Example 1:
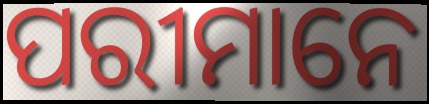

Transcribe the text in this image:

ପରୀମାନେ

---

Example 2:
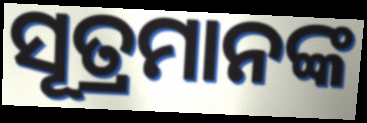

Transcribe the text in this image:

ସୂତ୍ରମାନଙ୍କ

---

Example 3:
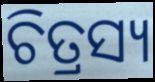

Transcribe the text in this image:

ଚିତ୍ରସ୍ୟ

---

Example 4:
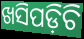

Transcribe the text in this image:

ଖସିପଡ଼ିଚି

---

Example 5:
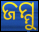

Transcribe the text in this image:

ଜମ୍ମୁ